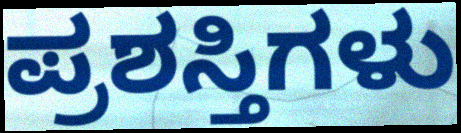
ಪ್ರಶಸ್ತಿಗಳು